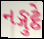
નઙ્ગુટ્ઠે